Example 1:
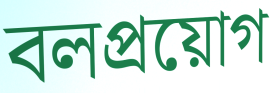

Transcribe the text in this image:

বলপ্ৰয়োগ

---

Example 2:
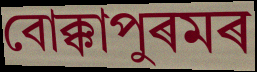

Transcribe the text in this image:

বোক্কাপুৰমৰ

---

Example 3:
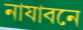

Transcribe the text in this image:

নাযাবনে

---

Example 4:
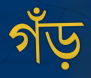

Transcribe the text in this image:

গঁড়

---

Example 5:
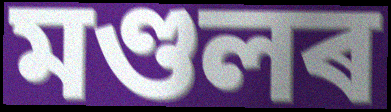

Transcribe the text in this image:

মণ্ডলৰ